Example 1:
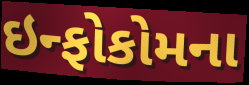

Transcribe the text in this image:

ઇન્ફોકોમના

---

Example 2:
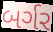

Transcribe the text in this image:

બર્ગર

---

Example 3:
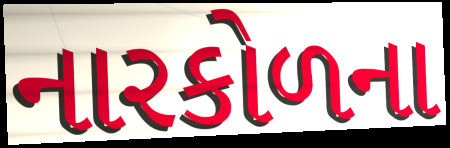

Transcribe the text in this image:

નારકોળના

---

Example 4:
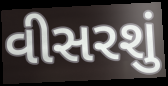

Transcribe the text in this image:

વીસરશું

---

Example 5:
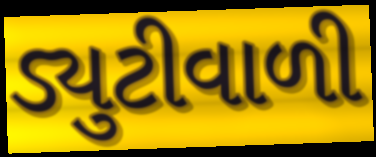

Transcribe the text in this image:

ડ્યુટીવાળી